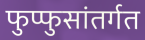
फुप्फुसांतर्गत